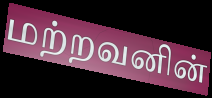
மற்றவனின்